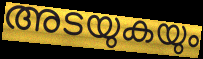
അടയുകയും